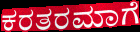
ಕರತರಮಾಗೆ